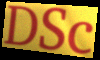
DSc